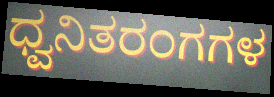
ಧ್ವನಿತರಂಗಗಳ